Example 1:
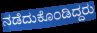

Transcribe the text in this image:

ನಡೆದುಕೊಂಡಿದ್ದರು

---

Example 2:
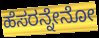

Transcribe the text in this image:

ಹೆಸರನ್ನೇನೋ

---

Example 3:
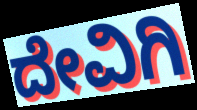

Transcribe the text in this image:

ದೇವಿಗಿ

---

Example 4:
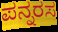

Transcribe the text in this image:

ಪನ್ನರಸ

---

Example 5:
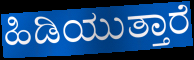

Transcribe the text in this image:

ಹಿಡಿಯುತ್ತಾರೆ